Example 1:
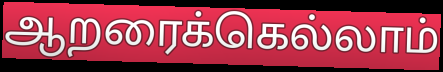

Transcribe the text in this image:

ஆறரைக்கெல்லாம்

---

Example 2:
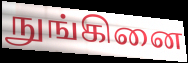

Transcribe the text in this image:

நுங்கினை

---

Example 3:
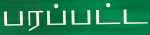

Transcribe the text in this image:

பரப்பட்ட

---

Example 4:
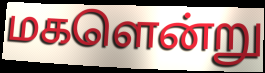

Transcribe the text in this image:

மகளென்று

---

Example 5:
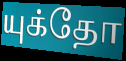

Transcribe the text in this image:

யுக்தோ